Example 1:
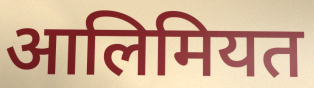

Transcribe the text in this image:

आलिमियत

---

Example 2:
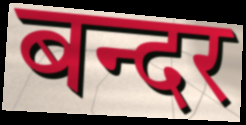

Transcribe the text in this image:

बन्दर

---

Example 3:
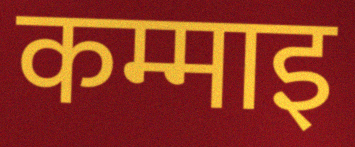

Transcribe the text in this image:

कम्माइ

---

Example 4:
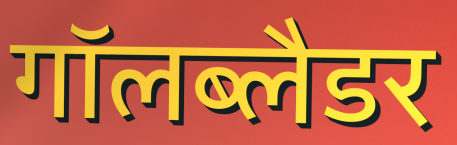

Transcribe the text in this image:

गॉलब्लैडर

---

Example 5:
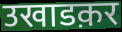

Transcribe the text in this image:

उखाडक़र